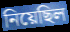
নিয়েছিল